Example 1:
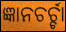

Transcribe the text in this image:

ଜ୍ଞାନଚର୍ଚ୍ଚା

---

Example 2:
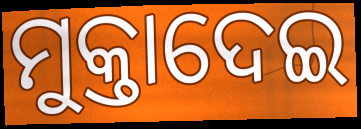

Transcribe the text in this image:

ମୁକ୍ତାଦେଇ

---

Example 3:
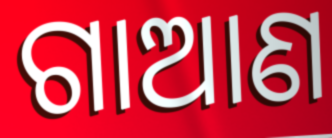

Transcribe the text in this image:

ଗାଆଣ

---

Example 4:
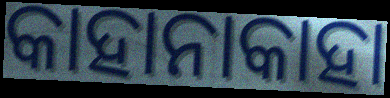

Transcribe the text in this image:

କାହାନାକାହା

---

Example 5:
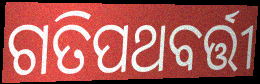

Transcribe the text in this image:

ଗତିପଥବର୍ତ୍ତୀ